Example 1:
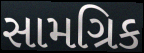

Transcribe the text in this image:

સામગ્રિક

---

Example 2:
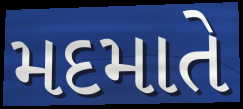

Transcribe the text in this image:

મદમાતે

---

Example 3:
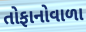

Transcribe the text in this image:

તોફાનોવાળા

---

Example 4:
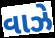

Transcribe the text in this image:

વાઝે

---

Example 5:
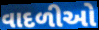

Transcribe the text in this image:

વાદળીઓ